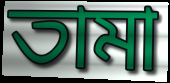
তামা